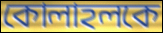
কোলাহলকে